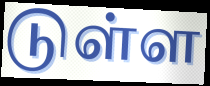
டுள்ள